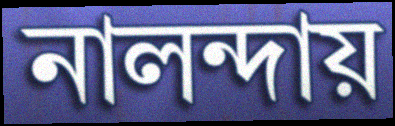
নালন্দায়